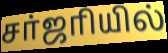
சர்ஜரியில்